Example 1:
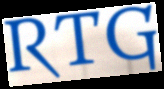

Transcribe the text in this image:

RTG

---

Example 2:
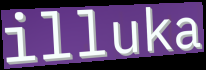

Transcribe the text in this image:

illuka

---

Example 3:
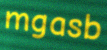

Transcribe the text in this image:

mgasb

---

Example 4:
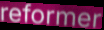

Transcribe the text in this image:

reformer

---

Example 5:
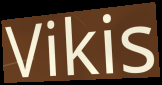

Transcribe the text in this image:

Vikis